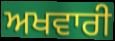
ਅਖਵਾਰੀ